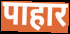
पाहार